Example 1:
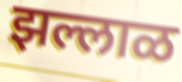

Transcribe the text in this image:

झल्लाळ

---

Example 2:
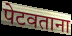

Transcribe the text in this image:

पेटवताना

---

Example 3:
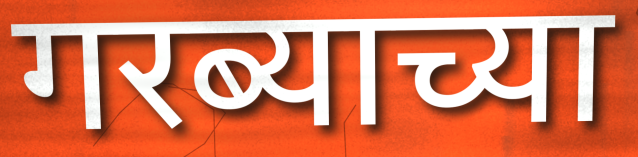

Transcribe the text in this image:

गरब्याच्या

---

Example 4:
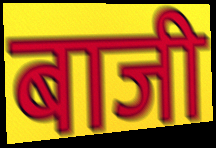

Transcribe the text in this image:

बाजी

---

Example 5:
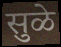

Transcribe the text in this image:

सुळे